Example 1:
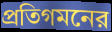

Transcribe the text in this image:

প্রতিগমনের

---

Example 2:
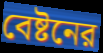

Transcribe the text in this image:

বেষ্টনের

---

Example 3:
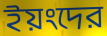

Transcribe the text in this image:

ইয়ংদের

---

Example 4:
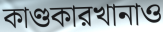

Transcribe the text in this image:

কাণ্ডকারখানাও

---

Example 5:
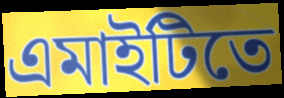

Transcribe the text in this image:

এমাইটিতে